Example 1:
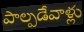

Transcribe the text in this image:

పాల్పడేవాళ్లు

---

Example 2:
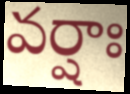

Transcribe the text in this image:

వర్షాః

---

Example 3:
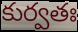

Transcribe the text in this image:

కుర్వతః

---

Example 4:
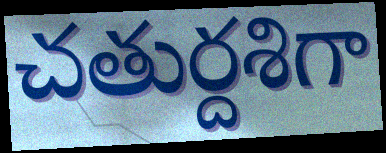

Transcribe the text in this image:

చతుర్దశిగా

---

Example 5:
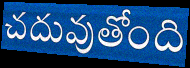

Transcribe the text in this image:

చదువుతోంది